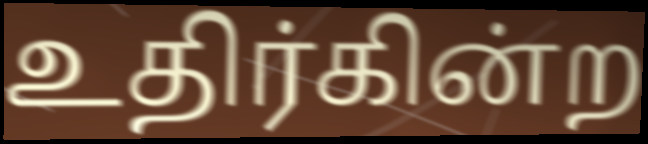
உதிர்கின்ற